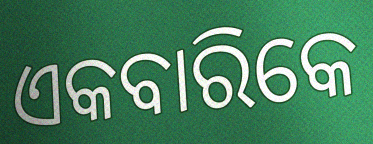
ଏକବାରିକେ